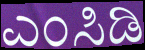
ಎಂಸಿಡಿ